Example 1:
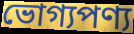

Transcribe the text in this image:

ভোগ্যপণ্য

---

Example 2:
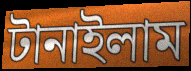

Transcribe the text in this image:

টানাইলাম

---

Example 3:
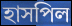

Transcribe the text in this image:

হাসপিল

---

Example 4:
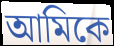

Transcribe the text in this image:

আমিকে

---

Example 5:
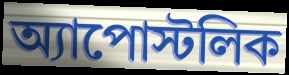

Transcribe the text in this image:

অ্যাপোস্টলিক